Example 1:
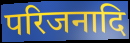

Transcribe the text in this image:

परिजनादि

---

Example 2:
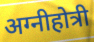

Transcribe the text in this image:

अग्नीहोत्री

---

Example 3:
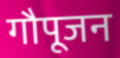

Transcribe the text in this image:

गौपूजन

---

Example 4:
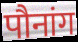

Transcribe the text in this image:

पौनांग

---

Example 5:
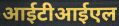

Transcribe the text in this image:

आईटीआईएल